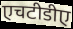
एचटीडीए